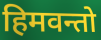
हिमवन्तो